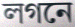
লগনে